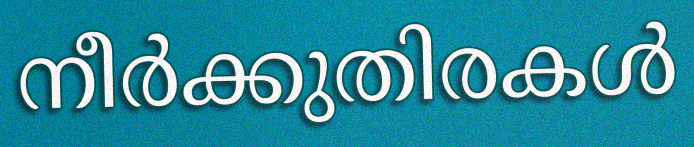
നീർക്കുതിരകൾ